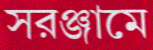
সরঞ্জামে